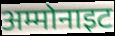
अम्मोनाइट